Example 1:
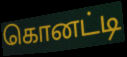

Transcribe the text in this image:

கொனட்டி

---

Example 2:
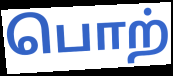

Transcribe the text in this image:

பொற்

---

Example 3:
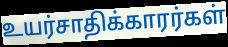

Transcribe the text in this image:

உயர்சாதிக்காரர்கள்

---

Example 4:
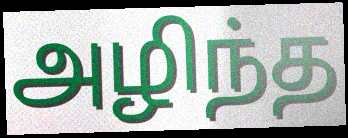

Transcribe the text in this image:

அழிந்த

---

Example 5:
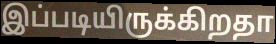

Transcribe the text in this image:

இப்படியிருக்கிறதா